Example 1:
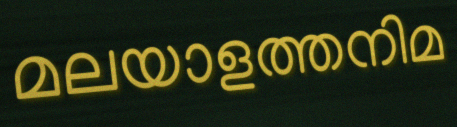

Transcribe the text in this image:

മലയാളത്തനിമ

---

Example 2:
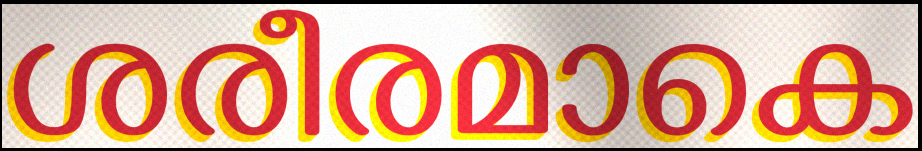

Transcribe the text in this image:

ശരീരമാകെ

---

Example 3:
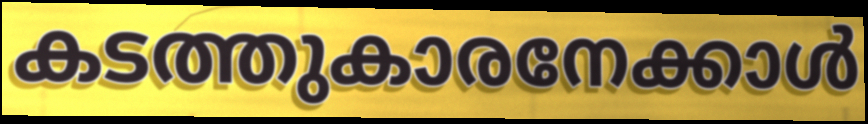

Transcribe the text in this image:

കടത്തുകാരനേക്കാൾ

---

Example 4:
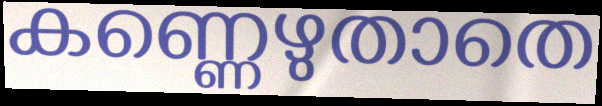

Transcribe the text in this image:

കണ്ണെഴുതാതെ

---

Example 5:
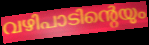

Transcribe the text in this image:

വഴിപാടിന്റെയും